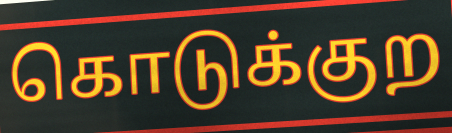
கொடுக்குற